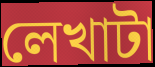
লেখাটা